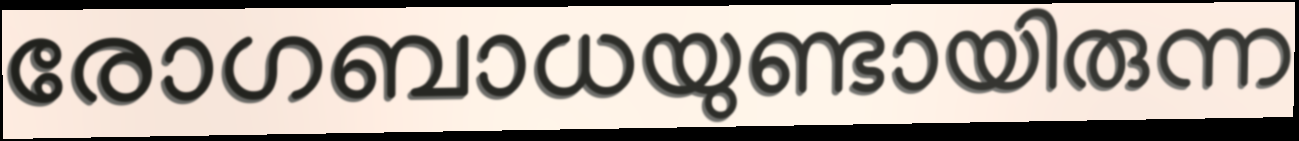
രോഗബാധയുണ്ടായിരുന്ന